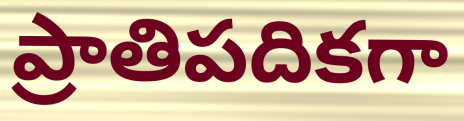
ప్రాతిపదికగా